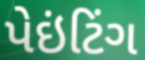
પેઇંટિંગ